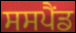
ਸਸਪੈੰਡ